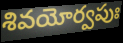
శివయోర్వపుః